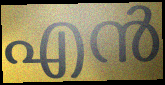
എൻ